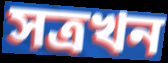
সত্ৰখন